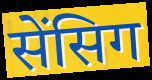
सेंसिग